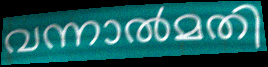
വന്നാൽമതി